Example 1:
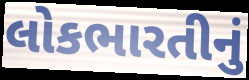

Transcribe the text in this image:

લોકભારતીનું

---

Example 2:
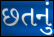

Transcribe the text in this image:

છતનું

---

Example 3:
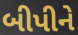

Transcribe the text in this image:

બીપીને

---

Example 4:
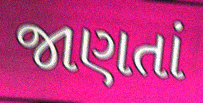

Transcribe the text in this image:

જાણતાં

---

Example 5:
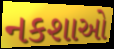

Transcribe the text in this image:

નકશાઓ